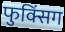
फुक्सिंग